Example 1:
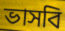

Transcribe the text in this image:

ভাসবি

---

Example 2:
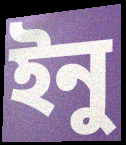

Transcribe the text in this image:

ইনু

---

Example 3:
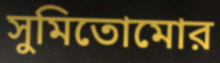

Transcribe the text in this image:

সুমিতোমোর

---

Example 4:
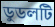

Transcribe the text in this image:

ডুডলটি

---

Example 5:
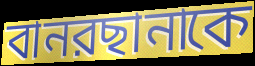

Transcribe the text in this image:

বানরছানাকে